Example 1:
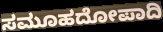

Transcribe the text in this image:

ಸಮೂಹದೋಪಾದಿ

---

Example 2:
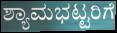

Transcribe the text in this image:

ಶ್ಯಾಮಭಟ್ಟರಿಗೆ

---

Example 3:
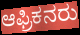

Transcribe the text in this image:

ಆಫ್ರಿಕನರು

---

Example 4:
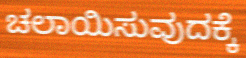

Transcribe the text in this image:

ಚಲಾಯಿಸುವುದಕ್ಕೆ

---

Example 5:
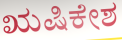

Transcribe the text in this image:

ಋಷಿಕೇಶ